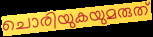
ചൊരിയുകയുമരുത്